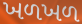
ખળખળ